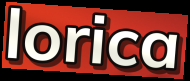
lorica